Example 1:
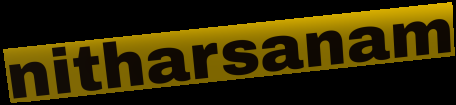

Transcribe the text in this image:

nitharsanam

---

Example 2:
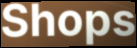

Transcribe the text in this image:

Shops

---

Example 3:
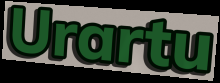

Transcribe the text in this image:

Urartu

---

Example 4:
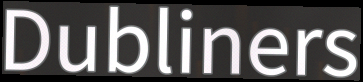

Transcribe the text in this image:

Dubliners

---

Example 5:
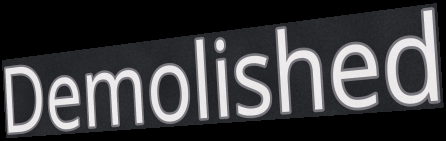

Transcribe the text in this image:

Demolished